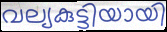
വല്യകുട്ടിയായി